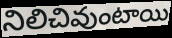
నిలిచివుంటాయి